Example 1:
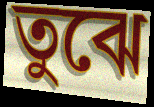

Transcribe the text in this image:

তুঝে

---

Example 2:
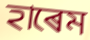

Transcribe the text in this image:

হাৰেম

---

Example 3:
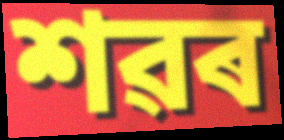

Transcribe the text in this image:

শৱৰ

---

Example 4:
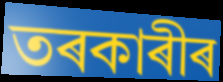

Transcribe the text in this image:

তৰকাৰীৰ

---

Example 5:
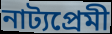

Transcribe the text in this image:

নাট্যপ্ৰেমী